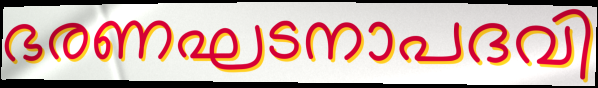
ഭരണഘടനാപദവി